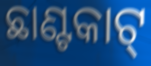
ଛାଣ୍ଟକାଟ୍